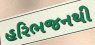
હરિભજનથી